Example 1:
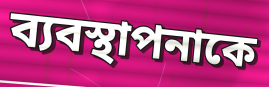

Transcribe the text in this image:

ব্যবস্থাপনাকে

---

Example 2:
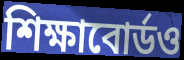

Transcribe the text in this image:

শিক্ষাবোর্ডও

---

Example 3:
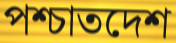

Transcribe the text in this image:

পশ্চাতদেশ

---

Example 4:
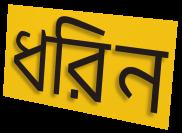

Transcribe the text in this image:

ধরিন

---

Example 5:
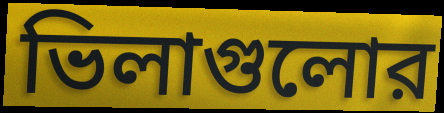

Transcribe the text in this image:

ভিলাগুলোর